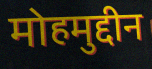
मोहमुद्दीन